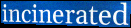
incinerated